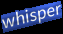
whisper